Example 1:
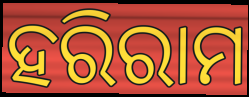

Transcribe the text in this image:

ହରିରାମ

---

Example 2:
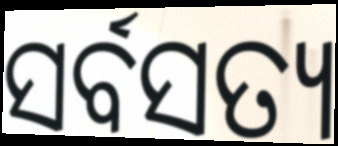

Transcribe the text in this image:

ସର୍ବସତ୍ୟ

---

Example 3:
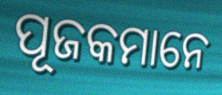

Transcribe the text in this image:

ପୂଜକମାନେ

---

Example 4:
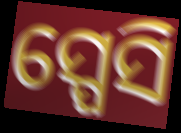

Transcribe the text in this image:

ସ୍ପେସି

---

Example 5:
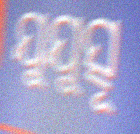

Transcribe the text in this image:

ଯୁଯୁତ୍ସୂ